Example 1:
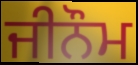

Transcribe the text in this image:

ਜੀਨੌਮ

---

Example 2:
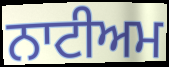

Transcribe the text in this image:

ਨਾਟੀਅਮ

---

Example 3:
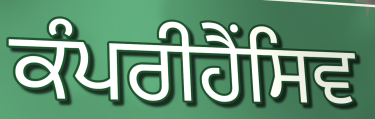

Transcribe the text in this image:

ਕੰਪਰੀਹੈਂਸਿਵ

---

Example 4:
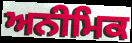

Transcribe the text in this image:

ਅਨੀਮਿਕ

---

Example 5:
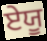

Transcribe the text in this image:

ਏਯੂ